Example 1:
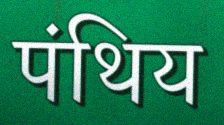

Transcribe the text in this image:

पंथिय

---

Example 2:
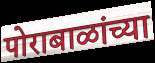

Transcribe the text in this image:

पोराबाळांच्या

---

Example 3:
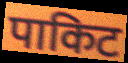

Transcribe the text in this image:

पाकिट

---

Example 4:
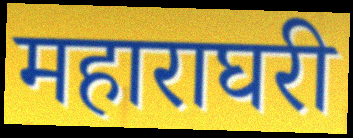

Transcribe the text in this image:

महाराघरी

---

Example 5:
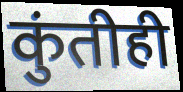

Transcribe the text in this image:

कुंतीही